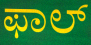
ಫಾಲ್